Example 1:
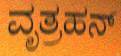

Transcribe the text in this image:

ವೃತ್ರಹನ್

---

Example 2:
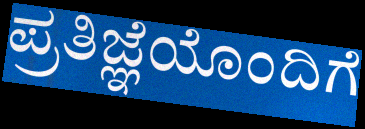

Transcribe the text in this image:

ಪ್ರತಿಜ್ಞೆಯೊಂದಿಗೆ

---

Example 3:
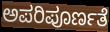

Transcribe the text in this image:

ಅಪರಿಪೂರ್ಣತೆ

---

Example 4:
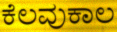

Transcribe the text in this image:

ಕೆಲವುಕಾಲ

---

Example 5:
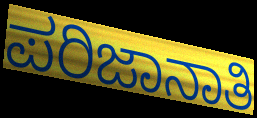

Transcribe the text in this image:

ಪರಿಜಾನಾತಿ